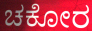
ಚಕೋರ